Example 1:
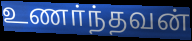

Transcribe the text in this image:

உணர்ந்தவன்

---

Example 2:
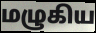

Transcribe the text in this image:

மழுகிய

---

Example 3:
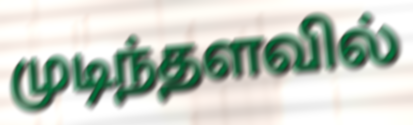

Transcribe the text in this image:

முடிந்தளவில்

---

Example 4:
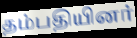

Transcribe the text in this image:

தம்பதியினர்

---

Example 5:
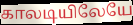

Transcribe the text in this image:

காலடியிலேயே